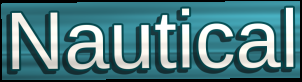
Nautical